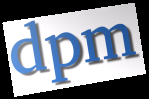
dpm